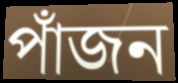
পাঁজন